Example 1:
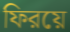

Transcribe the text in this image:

ফিরয়ে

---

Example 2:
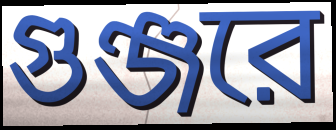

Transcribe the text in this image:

গুঞ্জরে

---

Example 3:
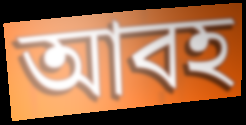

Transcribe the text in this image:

আবহ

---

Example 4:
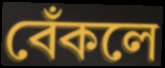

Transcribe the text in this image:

বেঁকলে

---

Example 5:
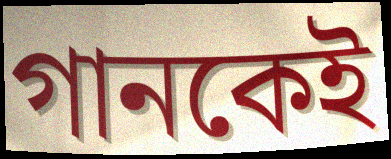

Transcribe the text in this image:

গানকেই